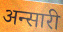
अन्सारी